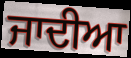
ਜਾਦੀਆ